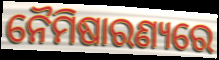
ନୈମିଷାରଣ୍ୟରେ